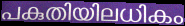
പകുതിയിലധികം